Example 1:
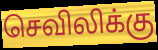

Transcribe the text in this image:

செவிலிக்கு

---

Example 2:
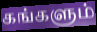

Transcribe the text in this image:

கங்களும்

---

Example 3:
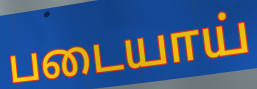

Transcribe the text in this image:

படையாய்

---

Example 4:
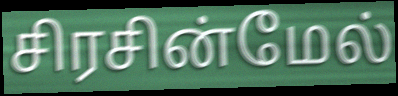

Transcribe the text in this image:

சிரசின்மேல்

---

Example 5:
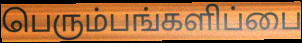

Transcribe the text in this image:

பெரும்பங்களிப்பை